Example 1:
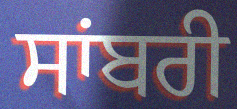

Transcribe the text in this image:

ਸਾਂਬਰੀ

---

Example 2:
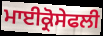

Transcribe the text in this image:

ਮਾਈਕ੍ਰੋਸੇਫਲੀ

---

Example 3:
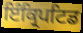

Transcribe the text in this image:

ਇੰਕ੍ਰਿਪਟਿਡ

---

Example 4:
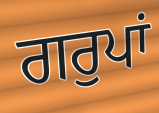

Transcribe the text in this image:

ਗਰੁਪਾਂ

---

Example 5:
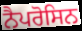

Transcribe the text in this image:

ਨੈਪਰੋਸਿਨ